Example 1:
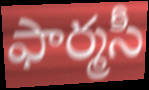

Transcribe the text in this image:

ఫార్మసీ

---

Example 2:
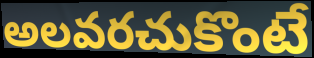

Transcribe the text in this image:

అలవరచుకొంటే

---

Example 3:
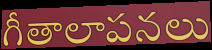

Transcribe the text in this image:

గీతాలాపనలు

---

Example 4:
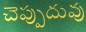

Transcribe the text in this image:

చెప్పుదువు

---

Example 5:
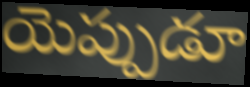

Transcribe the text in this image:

యెప్పుడూ